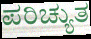
ಪರಿಚ್ಯುತ